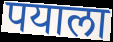
पयाला